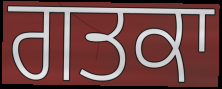
ਗਤਕਾ